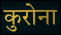
कुरोना